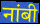
नांबी